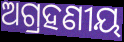
ଅଗ୍ରହଣୀୟ